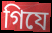
গিযে